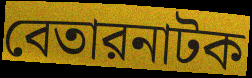
বেতারনাটক